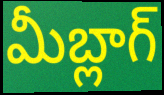
మీబ్లాగ్